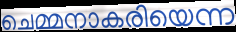
ചെമ്മനാകരിയെന്ന